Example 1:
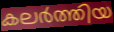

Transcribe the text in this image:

കലർത്തിയ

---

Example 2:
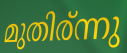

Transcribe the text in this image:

മുതിര്ന്നു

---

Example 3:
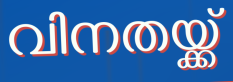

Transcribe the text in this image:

വിനതയ്ക്ക്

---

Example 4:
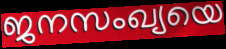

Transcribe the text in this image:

ജനസംഖ്യയെ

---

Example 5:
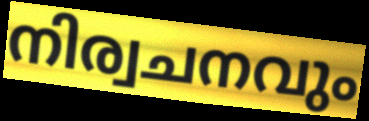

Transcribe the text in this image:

നിര്വചനവും